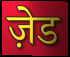
ज़ेड